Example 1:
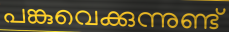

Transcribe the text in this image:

പങ്കുവെക്കുന്നുണ്ട്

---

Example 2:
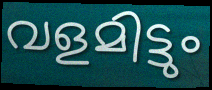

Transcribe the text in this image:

വളമിട്ടും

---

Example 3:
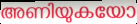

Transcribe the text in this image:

അണിയുകയോ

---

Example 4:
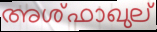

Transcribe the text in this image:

അശ്ഫാഖുല്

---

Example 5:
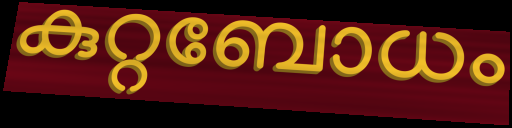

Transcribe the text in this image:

കുറ്റബോധം